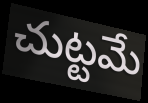
చుట్టమే